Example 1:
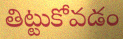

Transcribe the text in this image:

తిట్టుకోవడం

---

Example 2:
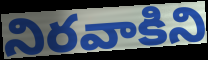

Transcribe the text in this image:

నిరవాకిని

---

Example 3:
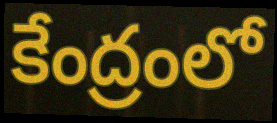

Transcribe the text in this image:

కేంద్రంలో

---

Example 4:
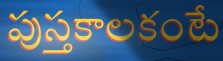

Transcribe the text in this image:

పుస్తకాలకంటే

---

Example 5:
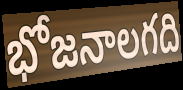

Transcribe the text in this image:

భోజనాలగది